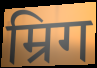
म्रिग